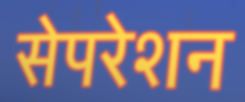
सेपरेशन